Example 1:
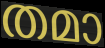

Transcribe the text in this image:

തമാ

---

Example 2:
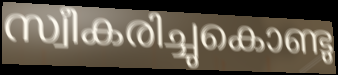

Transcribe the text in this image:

സ്വീകരിച്ചുകൊണ്ടു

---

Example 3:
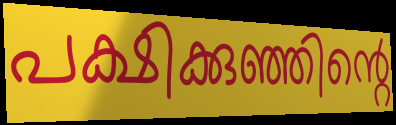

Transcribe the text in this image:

പക്ഷിക്കുഞ്ഞിന്റെ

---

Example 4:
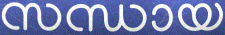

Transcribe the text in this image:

സന്ധായ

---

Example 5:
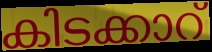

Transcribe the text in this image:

കിടക്കാറ്